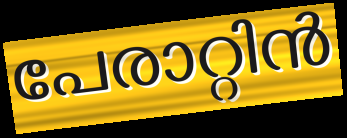
പേരാറ്റിൻ